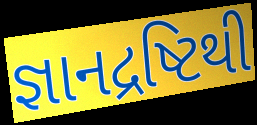
જ્ઞાનદ્રષ્ટિથી